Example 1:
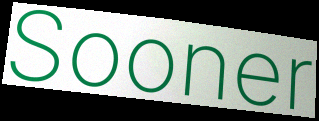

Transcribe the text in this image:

Sooner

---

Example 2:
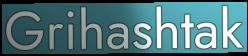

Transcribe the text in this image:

Grihashtak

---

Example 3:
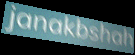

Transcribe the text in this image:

janakbshah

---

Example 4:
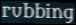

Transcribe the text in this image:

rubbing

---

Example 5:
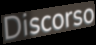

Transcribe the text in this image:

Discorso